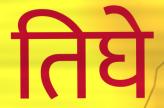
तिघे